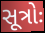
સૂત્રોઃ